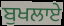
ਬੁਖਲਾਏ